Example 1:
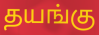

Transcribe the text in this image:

தயங்கு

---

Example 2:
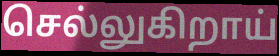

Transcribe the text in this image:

செல்லுகிறாய்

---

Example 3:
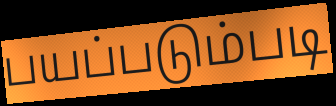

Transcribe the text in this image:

பயப்படும்படி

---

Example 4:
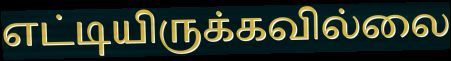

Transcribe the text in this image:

எட்டியிருக்கவில்லை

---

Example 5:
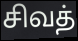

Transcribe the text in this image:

சிவத்